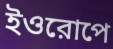
ইওরোপে